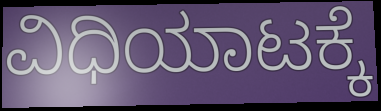
ವಿಧಿಯಾಟಕ್ಕೆ